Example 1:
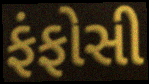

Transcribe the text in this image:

ફંફોસી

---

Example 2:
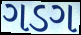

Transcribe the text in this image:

ગડગ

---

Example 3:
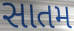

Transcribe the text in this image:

સાતમ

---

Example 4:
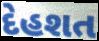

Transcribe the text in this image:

દેહશત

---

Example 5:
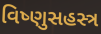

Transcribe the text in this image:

વિષ્ણુસહસ્ત્ર